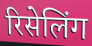
रिसेलिंग